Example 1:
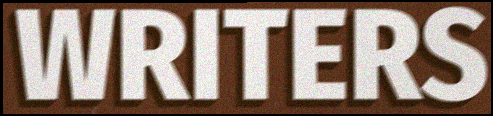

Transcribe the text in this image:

WRITERS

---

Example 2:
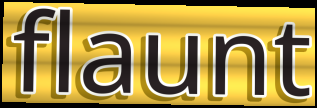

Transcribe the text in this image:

flaunt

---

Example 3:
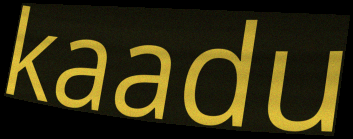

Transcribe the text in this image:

kaadu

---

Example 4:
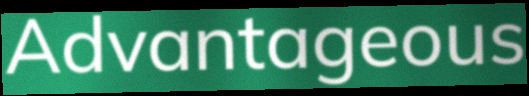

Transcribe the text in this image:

Advantageous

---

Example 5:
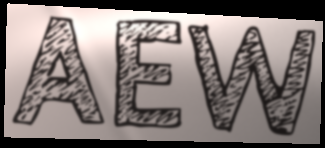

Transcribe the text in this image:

AEW